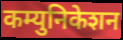
कम्युनिकेशन